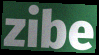
zibe